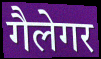
गैलेगर